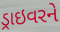
ડ્રાઇવરને